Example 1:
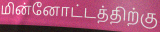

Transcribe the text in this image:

மின்னோட்டத்திற்கு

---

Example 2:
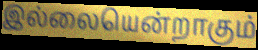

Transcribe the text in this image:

இல்லையென்றாகும்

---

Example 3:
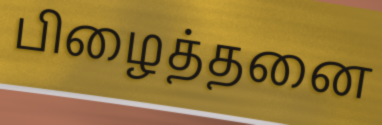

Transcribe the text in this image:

பிழைத்தனை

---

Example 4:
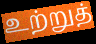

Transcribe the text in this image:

உற்றுத்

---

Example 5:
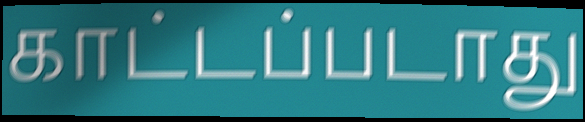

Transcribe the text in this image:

காட்டப்படாது